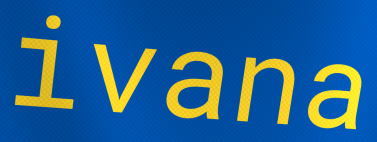
ivana